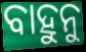
ବାହୁନୁ